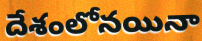
దేశంలోనయినా